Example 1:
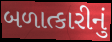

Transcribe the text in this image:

બળાત્કારીનું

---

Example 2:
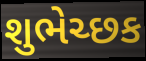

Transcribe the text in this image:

શુભેચ્છક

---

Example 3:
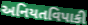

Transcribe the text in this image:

અનિયતવિપાકી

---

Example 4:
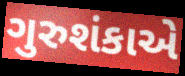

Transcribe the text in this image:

ગુરુશંકાએ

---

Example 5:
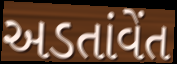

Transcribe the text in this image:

અડતાંવેંત